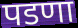
पडणा